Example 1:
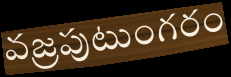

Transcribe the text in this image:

వజ్రపుటుంగరం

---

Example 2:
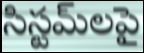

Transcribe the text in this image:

సిస్టమ్‌లపై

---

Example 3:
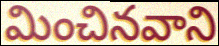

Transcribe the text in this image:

మించినవాని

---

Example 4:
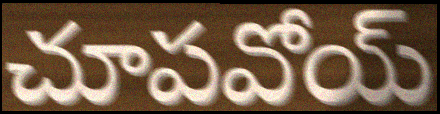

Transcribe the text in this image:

చూపవోయ్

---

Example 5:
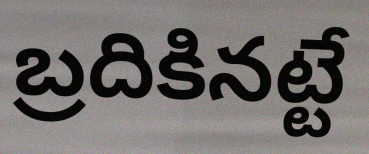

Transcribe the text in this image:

బ్రదికినట్టే